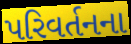
પરિવર્તનના